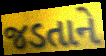
જડતાને